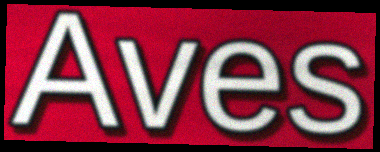
Aves